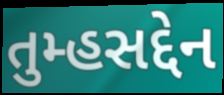
તુમ્હસદ્દેન